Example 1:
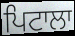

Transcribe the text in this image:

ਪਿਟਾਲਾ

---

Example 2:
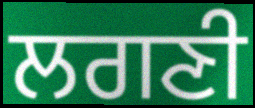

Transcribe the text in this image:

ਲਗਣੀ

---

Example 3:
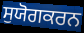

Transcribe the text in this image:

ਸੁਯੋਗਕਰਨ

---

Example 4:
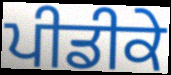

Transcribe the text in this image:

ਪੀਡੀਕੇ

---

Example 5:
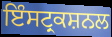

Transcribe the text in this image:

ਇੰਸਟ੍ਰਕਸ਼ਨਲ